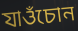
যাওঁচোন